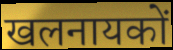
खलनायकों